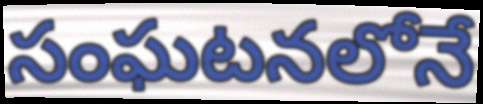
సంఘటనలోనే